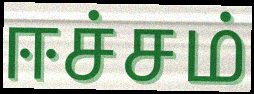
ஈச்சம்